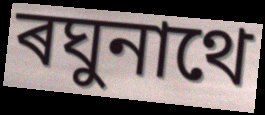
ৰঘুনাথে